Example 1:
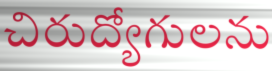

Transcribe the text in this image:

చిరుద్యోగులను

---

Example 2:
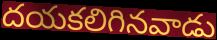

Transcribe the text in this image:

దయకలిగినవాడు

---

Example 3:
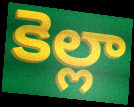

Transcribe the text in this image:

కెల్లా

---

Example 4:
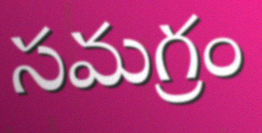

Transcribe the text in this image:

సమగ్రం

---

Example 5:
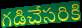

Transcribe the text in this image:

గడిచేసరికి